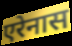
एरेनास